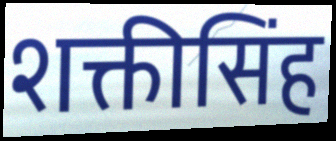
शक्तीसिंह